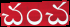
చంచ